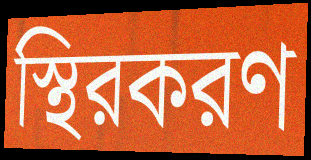
স্থিরকরণ